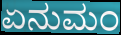
ಏನುಮಂ